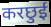
करछुई